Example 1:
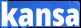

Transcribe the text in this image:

kansa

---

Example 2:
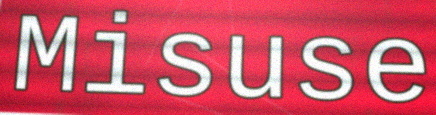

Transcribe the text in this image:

Misuse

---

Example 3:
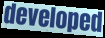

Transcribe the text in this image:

developed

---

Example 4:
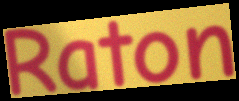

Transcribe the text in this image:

Raton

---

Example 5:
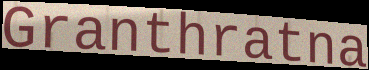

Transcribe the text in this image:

Granthratna